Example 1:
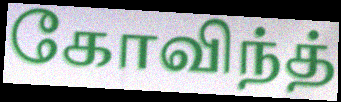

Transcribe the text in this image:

கோவிந்த்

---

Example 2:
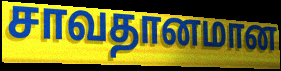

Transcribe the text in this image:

சாவதானமான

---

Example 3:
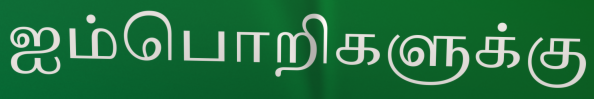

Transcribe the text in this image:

ஐம்பொறிகளுக்கு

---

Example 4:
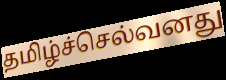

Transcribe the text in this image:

தமிழ்ச்செல்வனது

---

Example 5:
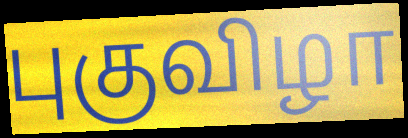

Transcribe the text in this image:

புகுவிழா